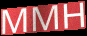
MMH